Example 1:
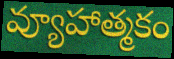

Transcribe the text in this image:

వ్యూహాత్మకం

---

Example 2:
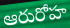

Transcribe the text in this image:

ఆరురోహ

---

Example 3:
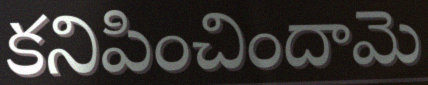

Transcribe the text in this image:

కనిపించిందామె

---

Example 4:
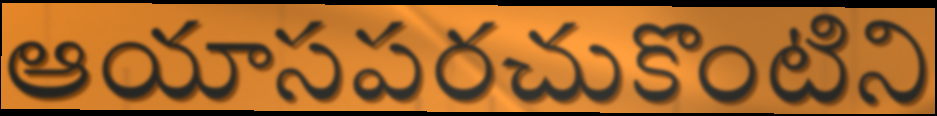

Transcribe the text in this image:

ఆయాసపరచుకొంటిని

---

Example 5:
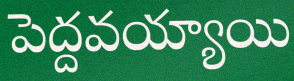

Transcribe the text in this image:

పెద్దవయ్యాయి